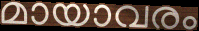
മായാവരം